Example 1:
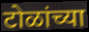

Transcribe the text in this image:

टोळांच्या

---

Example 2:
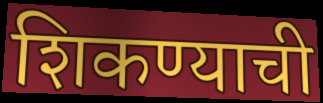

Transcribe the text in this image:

शिकण्याची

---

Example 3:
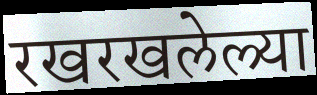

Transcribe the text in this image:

रखरखलेल्या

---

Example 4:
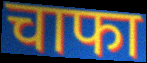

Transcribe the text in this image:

चाफा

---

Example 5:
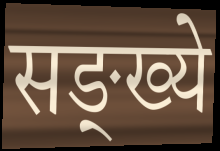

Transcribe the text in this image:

सङ्ख्ये